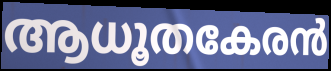
ആധൂതകേരൻ